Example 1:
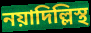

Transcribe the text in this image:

নয়াদিল্লিস্থ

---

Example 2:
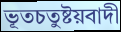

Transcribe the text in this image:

ভূতচতুষ্টয়বাদী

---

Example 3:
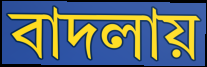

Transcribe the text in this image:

বাদলায়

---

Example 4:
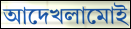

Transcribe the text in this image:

আদেখলামোই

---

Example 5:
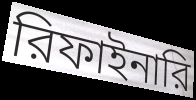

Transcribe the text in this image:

রিফাইনারি